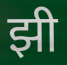
झी